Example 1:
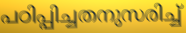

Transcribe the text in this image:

പഠിപ്പിച്ചതനുസരിച്ച്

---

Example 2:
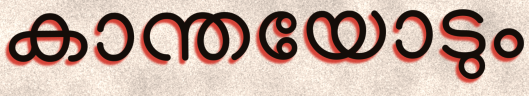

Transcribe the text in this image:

കാന്തയോടും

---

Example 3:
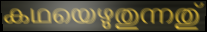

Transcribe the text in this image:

കഥയെഴുതുന്നതു്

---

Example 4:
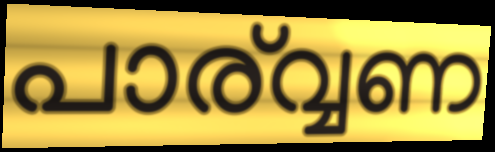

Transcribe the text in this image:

പാര്വ്വണ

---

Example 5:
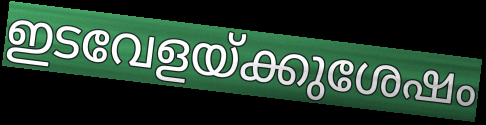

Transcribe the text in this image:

ഇടവേളയ്ക്കുശേഷം